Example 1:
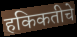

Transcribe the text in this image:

हकिकतीचे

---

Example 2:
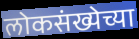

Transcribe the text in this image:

लोकसंख्‍येच्‍या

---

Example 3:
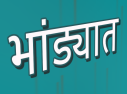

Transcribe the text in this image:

भांड्यात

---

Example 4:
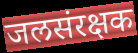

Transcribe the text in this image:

जलसंरक्षक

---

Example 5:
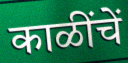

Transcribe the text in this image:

काळींचें